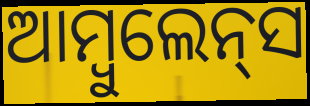
ଆମ୍ବୁଲେନ୍‌ସ